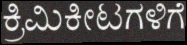
ಕ್ರಿಮಿಕೀಟಗಳಿಗೆ